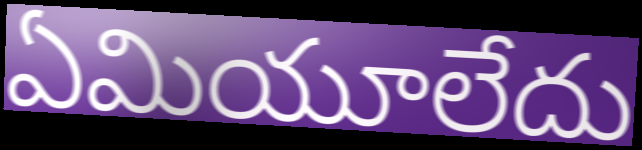
ఏమియూలేదు